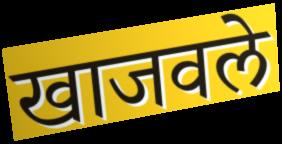
खाजवले